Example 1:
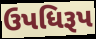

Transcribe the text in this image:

ઉપધિરૂપ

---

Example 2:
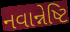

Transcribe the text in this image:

નવાન્નેષ્ટિ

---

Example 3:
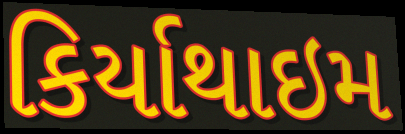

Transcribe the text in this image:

કિર્યાથાઇમ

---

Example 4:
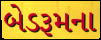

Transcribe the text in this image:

બેડરૂમના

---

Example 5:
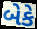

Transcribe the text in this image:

બેકે